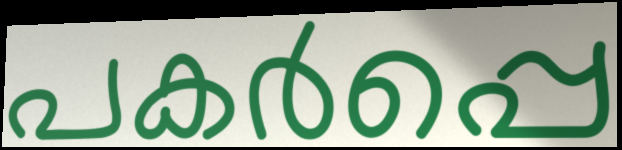
പകർപ്പെ